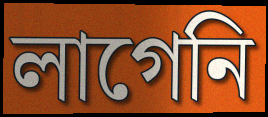
লাগেনি